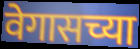
वेगासच्या